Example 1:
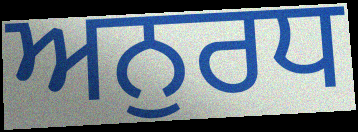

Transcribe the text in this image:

ਅਨੁਰਧ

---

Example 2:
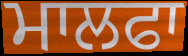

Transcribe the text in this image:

ਮਾਲਫਾ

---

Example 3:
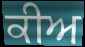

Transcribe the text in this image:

ਕੀਅ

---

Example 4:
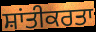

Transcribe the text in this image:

ਸ਼ਾਂਤੀਕਰਤਾ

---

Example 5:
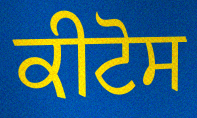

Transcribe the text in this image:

ਕੀਟੋਸ